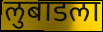
लुबाडला